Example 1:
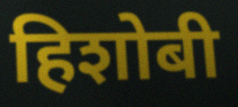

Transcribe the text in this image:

हिशोबी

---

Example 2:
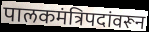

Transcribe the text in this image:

पालकमंत्रिपदांवरून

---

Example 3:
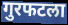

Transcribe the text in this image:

गुरफटला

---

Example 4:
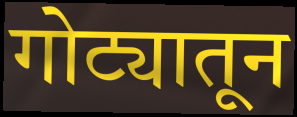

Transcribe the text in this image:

गोट्यातून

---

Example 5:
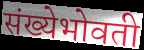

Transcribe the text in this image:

संख्येभोवती